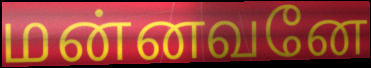
மன்னவனே